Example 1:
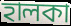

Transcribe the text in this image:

হালকা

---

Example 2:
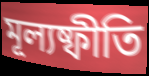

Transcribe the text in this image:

মূল্যষ্ফীতি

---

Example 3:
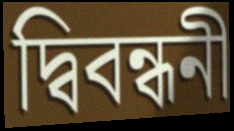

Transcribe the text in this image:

দ্বিবন্ধনী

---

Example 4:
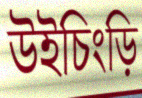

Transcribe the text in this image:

উইচিংড়ি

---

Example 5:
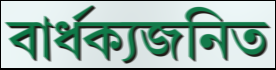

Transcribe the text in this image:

বার্ধক্যজনিত